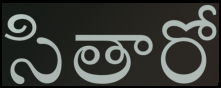
సితారో